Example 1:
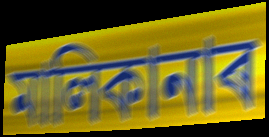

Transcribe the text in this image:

মালিকানাৰ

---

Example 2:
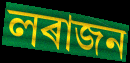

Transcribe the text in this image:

লৰাজন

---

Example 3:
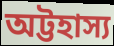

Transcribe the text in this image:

অট্টহাস্য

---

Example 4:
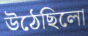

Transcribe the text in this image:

উঠেছিলো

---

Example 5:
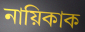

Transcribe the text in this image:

নায়িকাক